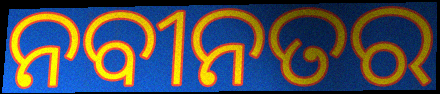
ନବୀନତର